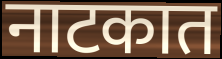
नाटकात